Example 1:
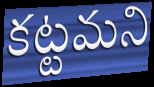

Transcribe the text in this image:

కట్టమని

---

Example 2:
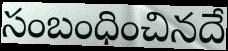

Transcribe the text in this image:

సంబంధించినదే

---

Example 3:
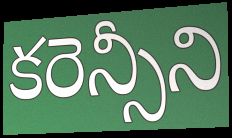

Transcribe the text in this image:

కరెన్సీని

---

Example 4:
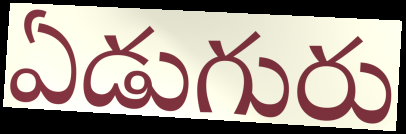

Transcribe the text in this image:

ఏడుగురు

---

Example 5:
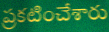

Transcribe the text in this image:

ప్రకటించేశారు